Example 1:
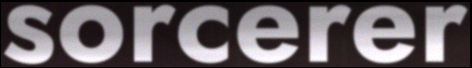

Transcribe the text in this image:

sorcerer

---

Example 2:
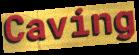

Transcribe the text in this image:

Caving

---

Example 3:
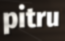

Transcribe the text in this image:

pitru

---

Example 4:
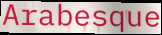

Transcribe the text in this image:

Arabesque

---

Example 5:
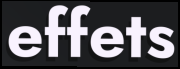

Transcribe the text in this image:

effets